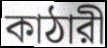
কাঠারী